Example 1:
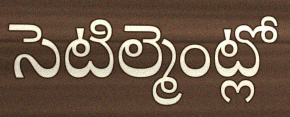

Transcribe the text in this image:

సెటిల్మెంట్లో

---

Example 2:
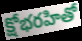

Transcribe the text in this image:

క్షోభరహితో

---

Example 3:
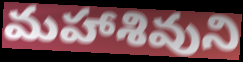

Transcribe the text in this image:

మహాశివుని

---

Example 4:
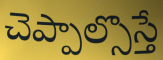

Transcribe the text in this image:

చెప్పాల్సొస్తే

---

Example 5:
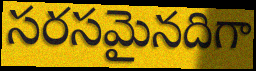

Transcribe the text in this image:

సరసమైనదిగా